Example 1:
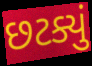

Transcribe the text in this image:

છટક્યું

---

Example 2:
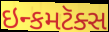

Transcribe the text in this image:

ઇન્કમટૅક્સ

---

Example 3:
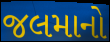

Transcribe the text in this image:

જલમાનો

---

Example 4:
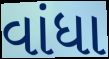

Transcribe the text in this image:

વાંધા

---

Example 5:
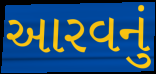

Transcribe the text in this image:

આરવનું